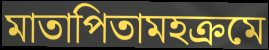
মাতাপিতামহক্রমে